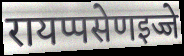
रायप्पसेणइज्जे